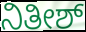
ನಿತೀಶ್